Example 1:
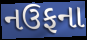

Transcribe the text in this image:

નઉફના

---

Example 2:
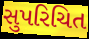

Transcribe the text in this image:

સુપરિચિત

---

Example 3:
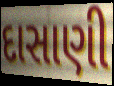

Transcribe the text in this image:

દાસાણી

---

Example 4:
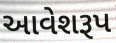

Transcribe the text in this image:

આવેશરૂપ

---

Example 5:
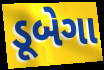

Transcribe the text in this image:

ડૂબેગા